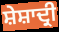
ਸ਼ੇਸ਼ਾਦ੍ਰੀ